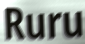
Ruru